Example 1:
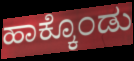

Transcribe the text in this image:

ಹಾಕ್ಕೊಂಡು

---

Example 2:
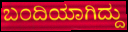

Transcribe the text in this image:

ಬಂದಿಯಾಗಿದ್ದು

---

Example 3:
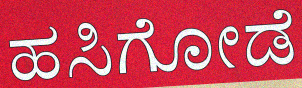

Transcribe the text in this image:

ಹಸಿಗೋಡೆ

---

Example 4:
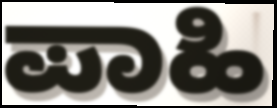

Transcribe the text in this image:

ಪಾಹಿ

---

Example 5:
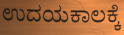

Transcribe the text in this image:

ಉದಯಕಾಲಕ್ಕೆ